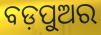
ବଡ଼ପୁଅର